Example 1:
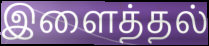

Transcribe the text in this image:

இளைத்தல்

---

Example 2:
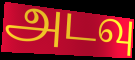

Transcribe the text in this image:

அடவு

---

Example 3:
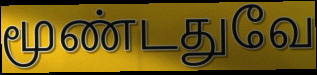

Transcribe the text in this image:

மூண்டதுவே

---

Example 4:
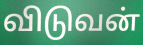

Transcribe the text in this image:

விடுவன்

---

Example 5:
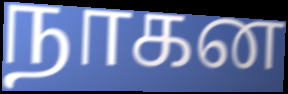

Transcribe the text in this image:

நாகன